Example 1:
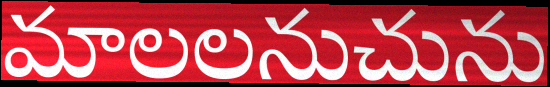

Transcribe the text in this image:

మాలలనుచును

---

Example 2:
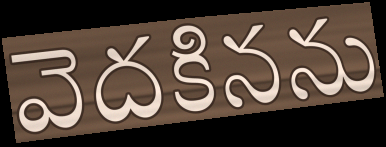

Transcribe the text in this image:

వెదకినను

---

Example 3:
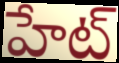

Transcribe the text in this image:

హేట్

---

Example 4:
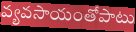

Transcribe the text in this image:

వ్యవసాయంతోపాటు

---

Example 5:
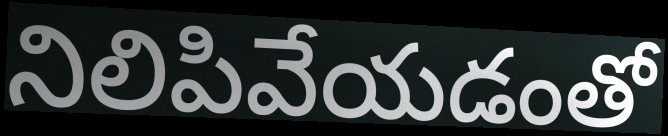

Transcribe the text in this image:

నిలిపివేయడంతో